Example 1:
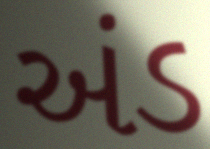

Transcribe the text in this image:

અંડ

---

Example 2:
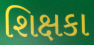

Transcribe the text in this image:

શિક્ષકા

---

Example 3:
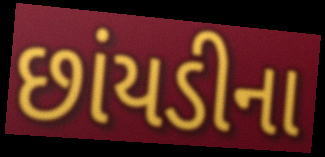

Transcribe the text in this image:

છાંયડીના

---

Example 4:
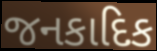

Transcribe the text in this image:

જનકાદિક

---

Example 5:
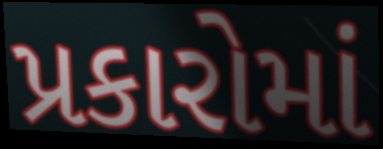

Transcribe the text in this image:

પ્રકારોમાં